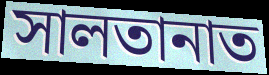
সালতানাত